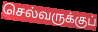
செல்வருக்குப்